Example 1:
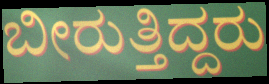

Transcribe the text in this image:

ಬೀರುತ್ತಿದ್ದರು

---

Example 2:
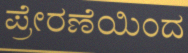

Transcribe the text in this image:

ಪ್ರೇರಣೆಯಿಂದ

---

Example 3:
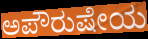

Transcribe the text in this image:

ಅಪೌರುಷೇಯ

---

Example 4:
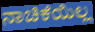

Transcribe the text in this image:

ನಾಚಿಕೆಯಿಲ್ಲ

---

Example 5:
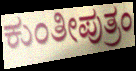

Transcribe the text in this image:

ಕುಂತೀಪುತ್ರಂ